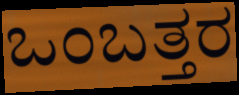
ಒಂಬತ್ತರ